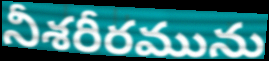
నీశరీరమును